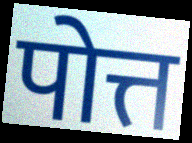
पोत्त